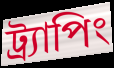
ট্র্যাপিং